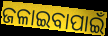
ଜଳାଇବାପାଇଁ